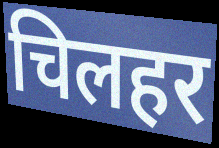
चिलहर